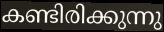
കണ്ടിരിക്കുന്നു